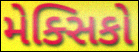
મેક્સિકો